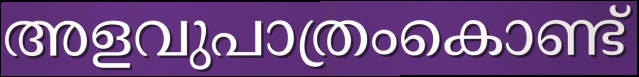
അളവുപാത്രംകൊണ്ട്